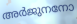
അർജുനനോ